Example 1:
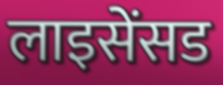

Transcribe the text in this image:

लाइसेंसड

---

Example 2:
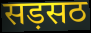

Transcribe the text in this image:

सड़सठ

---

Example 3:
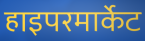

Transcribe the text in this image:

हाइपरमार्केट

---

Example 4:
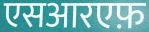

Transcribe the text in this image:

एसआरएफ़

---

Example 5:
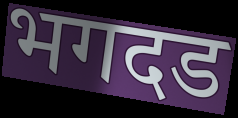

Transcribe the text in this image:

भगदड